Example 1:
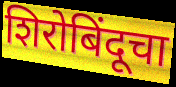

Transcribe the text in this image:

शिरोबिंदूचा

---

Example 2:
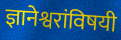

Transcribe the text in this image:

ज्ञानेश्वरांविषयी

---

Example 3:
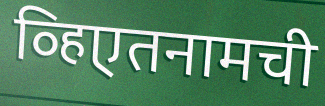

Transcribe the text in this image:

व्हिएतनामची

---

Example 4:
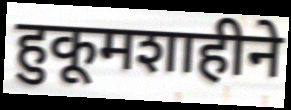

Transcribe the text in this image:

हुकूमशाहीने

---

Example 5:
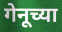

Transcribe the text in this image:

गेनूच्या